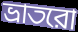
ভ্রাতরো